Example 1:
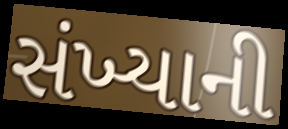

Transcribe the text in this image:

સંખ્યાની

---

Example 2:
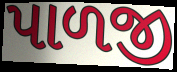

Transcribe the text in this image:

પાળજી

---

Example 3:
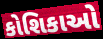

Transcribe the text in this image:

કોશિકાઓ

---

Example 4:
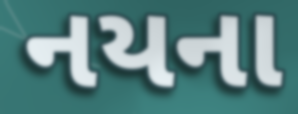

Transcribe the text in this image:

નયના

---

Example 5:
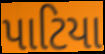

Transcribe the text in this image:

પાટિયા